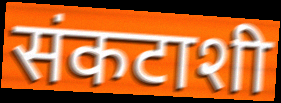
संकटाशी